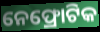
ନେଫ୍ରୋଟିକ